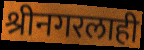
श्रीनगरलाही